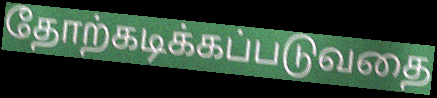
தோற்கடிக்கப்படுவதை